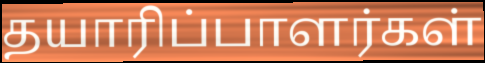
தயாரிப்பாளர்கள்